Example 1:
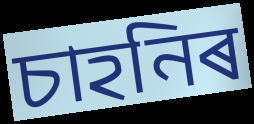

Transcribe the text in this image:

চাহনিৰ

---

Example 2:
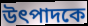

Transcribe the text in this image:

উৎপাদকে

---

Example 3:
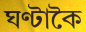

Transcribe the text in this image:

ঘণ্টাকৈ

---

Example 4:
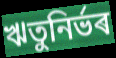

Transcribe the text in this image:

ঋতুনিৰ্ভৰ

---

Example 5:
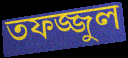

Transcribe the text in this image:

তফজ্জুল